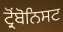
ਟ੍ਰੋਂਬੋਨਿਸਟ